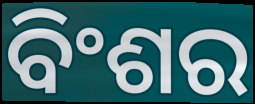
ବିଂଶର